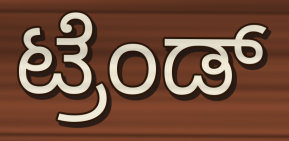
ಟ್ರೆಂಡ್